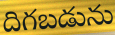
దిగబడును